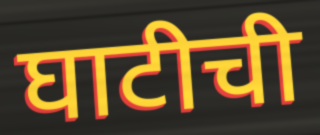
घाटीची